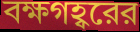
বক্ষগহ্বরের